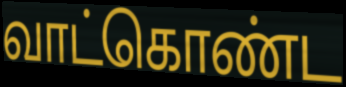
வாட்கொண்ட